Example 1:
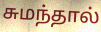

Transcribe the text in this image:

சுமந்தால்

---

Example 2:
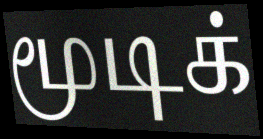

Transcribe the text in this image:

மூடிக்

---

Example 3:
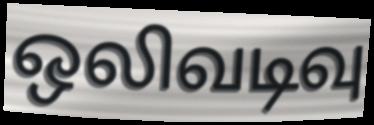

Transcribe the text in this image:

ஒலிவடிவு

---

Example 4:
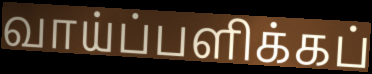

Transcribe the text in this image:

வாய்ப்பளிக்கப்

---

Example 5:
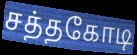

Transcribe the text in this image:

சத்தகோடி